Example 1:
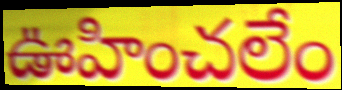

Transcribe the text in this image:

ఊహించలేం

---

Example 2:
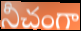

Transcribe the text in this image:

నీచంగా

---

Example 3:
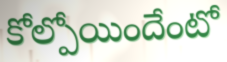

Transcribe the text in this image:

కోల్పోయిందేంటో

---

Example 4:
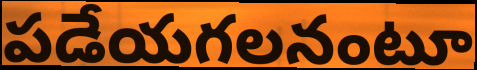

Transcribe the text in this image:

పడేయగలనంటూ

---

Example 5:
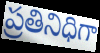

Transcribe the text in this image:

ప్రతినిధిగా